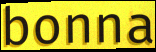
bonna